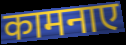
कामनाए